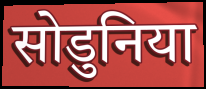
सोडुनिया